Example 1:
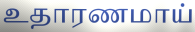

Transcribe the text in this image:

உதாரணமாய்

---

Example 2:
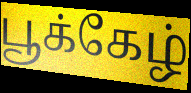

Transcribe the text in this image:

பூக்கேழ்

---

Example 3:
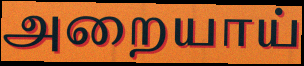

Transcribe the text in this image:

அறையாய்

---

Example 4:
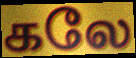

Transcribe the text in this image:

கலே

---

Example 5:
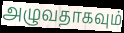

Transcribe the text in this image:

அழுவதாகவும்